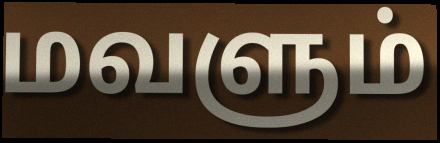
மவளும்